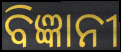
ବିଜ୍ଞାନୀ